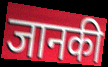
जानकी